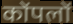
कोंपलों